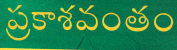
ప్రకాశవంతం